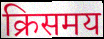
क्रिसमय